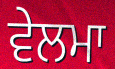
ਵੇਲਮਾ